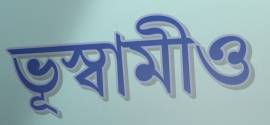
ভূস্বামীও